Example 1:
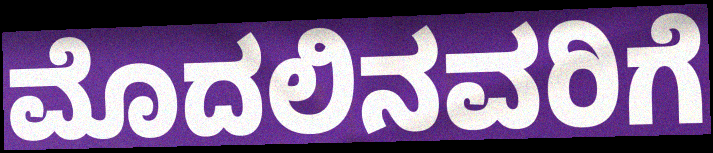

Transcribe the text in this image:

ಮೊದಲಿನವರಿಗೆ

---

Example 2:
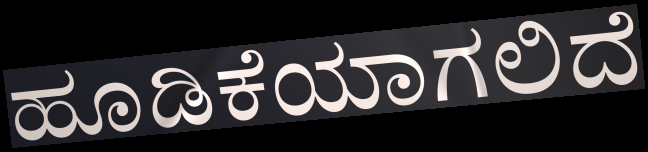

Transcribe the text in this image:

ಹೂಡಿಕೆಯಾಗಲಿದೆ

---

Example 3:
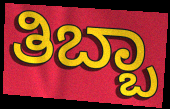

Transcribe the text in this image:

ತಿಬ್ಬಾ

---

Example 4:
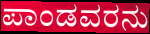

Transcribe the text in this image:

ಪಾಂಡವರನು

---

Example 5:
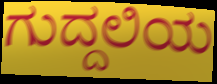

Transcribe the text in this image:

ಗುದ್ದಲಿಯ